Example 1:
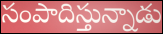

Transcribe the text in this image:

సంపాదిస్తున్నాడు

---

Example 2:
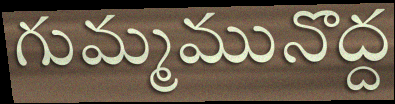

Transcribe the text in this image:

గుమ్మమునొద్ద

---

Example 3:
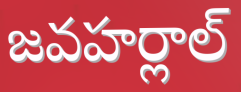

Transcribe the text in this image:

జవహర్లాల్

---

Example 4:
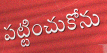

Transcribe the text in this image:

పట్టించుకోను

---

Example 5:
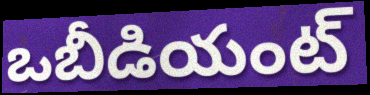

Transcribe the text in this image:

ఒబీడియంట్